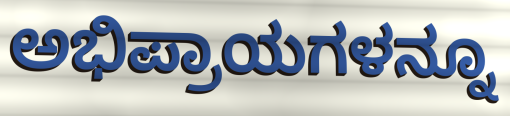
ಅಭಿಪ್ರಾಯಗಳನ್ನೂ